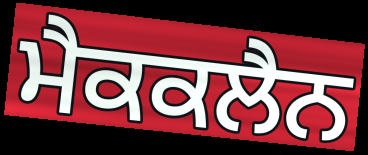
ਮੈਕਕਲੈਨ